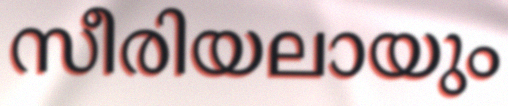
സീരിയലായും